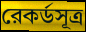
রেকর্ডসূত্র